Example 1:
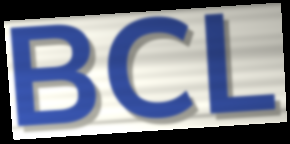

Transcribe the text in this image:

BCL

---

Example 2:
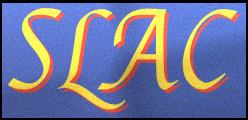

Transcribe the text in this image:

SLAC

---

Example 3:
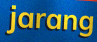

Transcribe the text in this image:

jarang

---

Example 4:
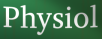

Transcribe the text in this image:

Physiol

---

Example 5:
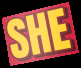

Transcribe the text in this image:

SHE